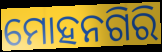
ମୋହନଗିରି